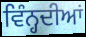
ਵਿੰਨ੍ਹਦੀਆਂ